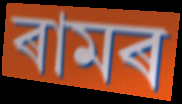
ৰামৰ